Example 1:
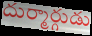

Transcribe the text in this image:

దుర్మార్గుడు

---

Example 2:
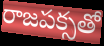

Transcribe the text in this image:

రాజపక్సతో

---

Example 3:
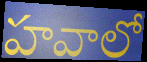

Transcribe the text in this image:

హవాలో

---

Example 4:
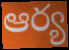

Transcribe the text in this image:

ఆర్య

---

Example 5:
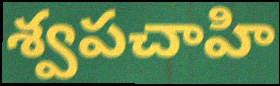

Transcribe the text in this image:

శ్వపచాహి